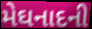
મેઘનાદની